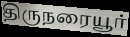
திருநரையூர்